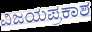
ವಿಜಯಪ್ರಕಾಶ